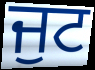
ਜੁਟ